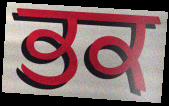
ਭਕ